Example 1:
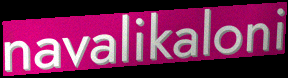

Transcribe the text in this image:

navalikaloni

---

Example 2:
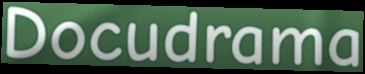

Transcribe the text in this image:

Docudrama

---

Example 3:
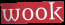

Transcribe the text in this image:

wook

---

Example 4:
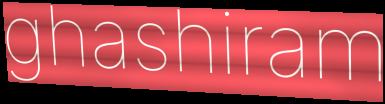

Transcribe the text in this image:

ghashiram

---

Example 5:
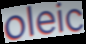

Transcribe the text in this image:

oleic